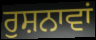
ਰੁਸ਼ਨਾਵਾਂ